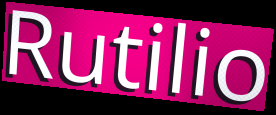
Rutilio